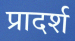
प्रादर्श